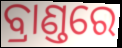
ବ୍ରାଣ୍ଡରେ